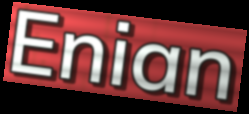
Enian